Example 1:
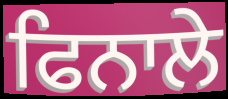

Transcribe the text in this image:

ਫਿਨਾਲੇ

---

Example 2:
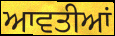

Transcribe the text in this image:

ਆਵਤੀਆਂ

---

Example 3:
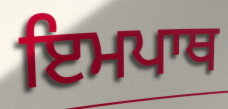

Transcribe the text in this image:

ਇਮਪਾਥ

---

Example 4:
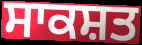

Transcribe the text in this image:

ਸਾਕਸ਼ਤ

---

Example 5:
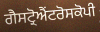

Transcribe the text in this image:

ਗੈਸਟ੍ਰੋਐਂਟਰੋਸਕੋਪੀ